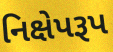
નિક્ષેપરૂપ